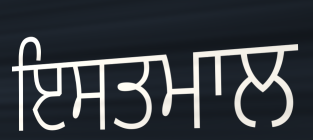
ਇਸਤਮਾਲ